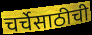
चर्चेसाठीची